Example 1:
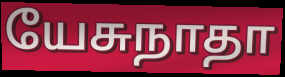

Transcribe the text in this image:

யேசுநாதா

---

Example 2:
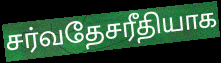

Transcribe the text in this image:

சர்வதேசரீதியாக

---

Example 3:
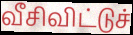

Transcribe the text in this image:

வீசிவிட்டுச்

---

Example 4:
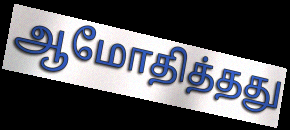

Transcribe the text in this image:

ஆமோதித்தது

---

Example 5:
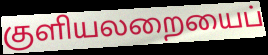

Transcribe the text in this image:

குளியலறையைப்